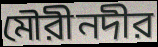
মৌরীনদীর